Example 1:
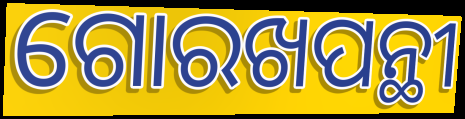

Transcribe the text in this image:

ଗୋରଖପନ୍ଥୀ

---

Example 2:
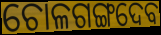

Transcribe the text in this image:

ଚୋଳଗଙ୍ଗଦେବ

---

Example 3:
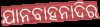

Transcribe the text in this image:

ଯାନବାହନାଦିର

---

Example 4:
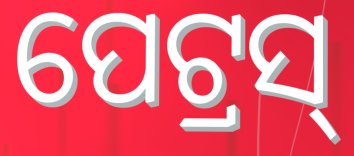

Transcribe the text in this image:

ପେଟ୍ରସ୍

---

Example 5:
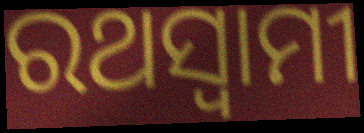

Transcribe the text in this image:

ରଥସ୍ୱାମୀ